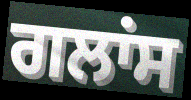
ਗਲਾਂਸ